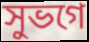
সুভগে